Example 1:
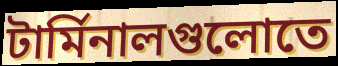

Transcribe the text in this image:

টার্মিনালগুলোতে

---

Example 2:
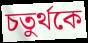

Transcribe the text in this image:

চতুর্থকে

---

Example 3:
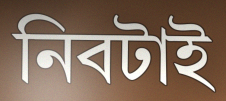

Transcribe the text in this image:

নিবটাই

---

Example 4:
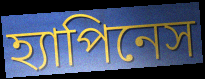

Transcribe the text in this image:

হ্যাপিনেস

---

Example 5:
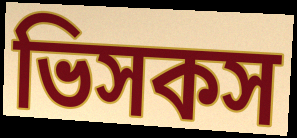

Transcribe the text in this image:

ভিসকস